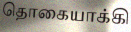
தொகையாக்கி